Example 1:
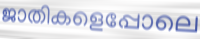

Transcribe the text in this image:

ജാതികളെപ്പോലെ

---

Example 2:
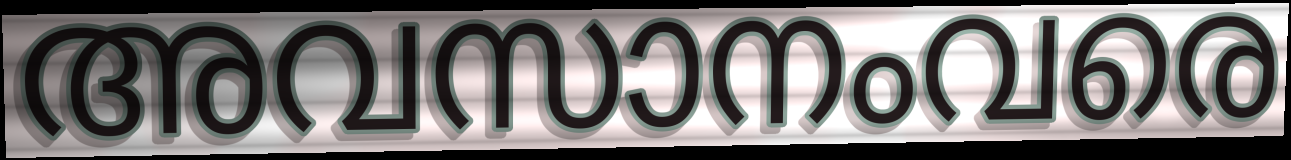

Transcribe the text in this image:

അവസാനംവരെ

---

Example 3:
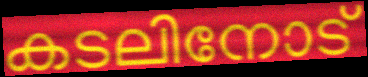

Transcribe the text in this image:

കടലിനോട്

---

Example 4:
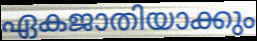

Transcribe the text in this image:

ഏകജാതിയാക്കും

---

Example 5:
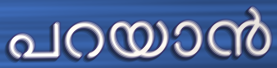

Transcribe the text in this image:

പറയാൻ